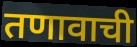
तणावाची